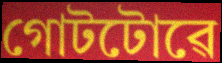
গোটটোৱে